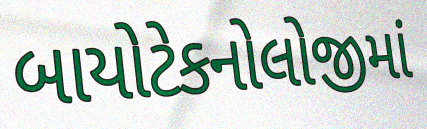
બાયોટેકનોલોજીમાં